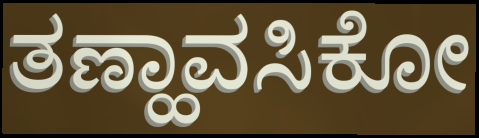
ತಣ್ಹಾವಸಿಕೋ